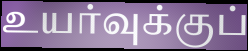
உயர்வுக்குப்